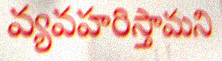
వ్యవహరిస్తామని